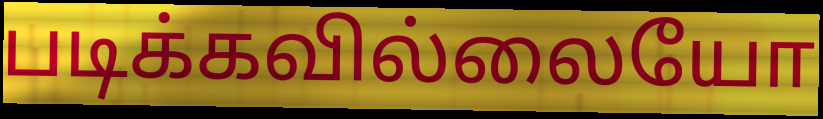
படிக்கவில்லையோ